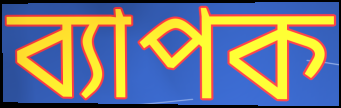
ব্যাপক